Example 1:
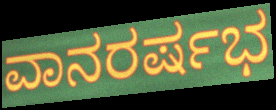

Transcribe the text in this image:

ವಾನರರ್ಷಭ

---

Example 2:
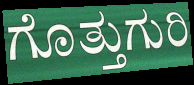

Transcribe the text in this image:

ಗೊತ್ತುಗುರಿ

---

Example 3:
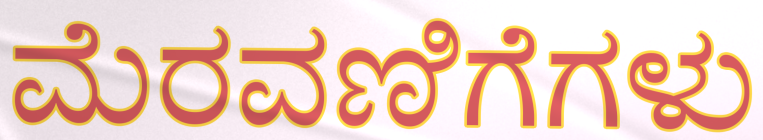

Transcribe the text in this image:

ಮೆರವಣಿಗೆಗಳು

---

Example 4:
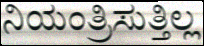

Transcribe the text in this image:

ನಿಯಂತ್ರಿಸುತ್ತಿಲ್ಲ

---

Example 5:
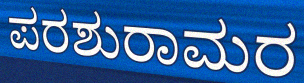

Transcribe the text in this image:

ಪರಶುರಾಮರ